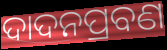
ଦାଦନପ୍ରବଣ